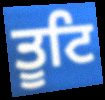
ਤੂਟਿ